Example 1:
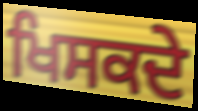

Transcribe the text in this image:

ਖਿਸਕਦੇ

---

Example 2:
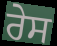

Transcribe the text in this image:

ਰੇਸ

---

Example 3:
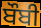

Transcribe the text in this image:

ਬੌਬੀ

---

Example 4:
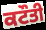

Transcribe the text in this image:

ਕਟੌਤੀ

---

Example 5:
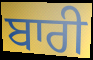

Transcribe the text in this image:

ਬਾਰੀ